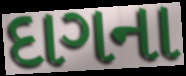
દાગના